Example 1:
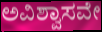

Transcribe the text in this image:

ಅವಿಶ್ವಾಸವೇ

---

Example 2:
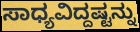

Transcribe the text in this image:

ಸಾಧ್ಯವಿದ್ದಷ್ಟನ್ನು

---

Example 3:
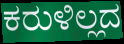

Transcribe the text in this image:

ಕರುಳಿಲ್ಲದ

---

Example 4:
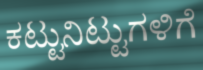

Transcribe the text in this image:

ಕಟ್ಟುನಿಟ್ಟುಗಳಿಗೆ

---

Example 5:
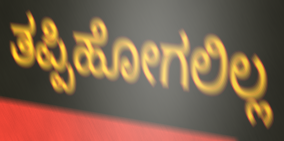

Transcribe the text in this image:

ತಪ್ಪಿಹೋಗಲಿಲ್ಲ